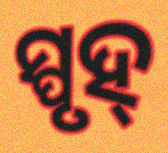
ସ୍ପୃହ୍